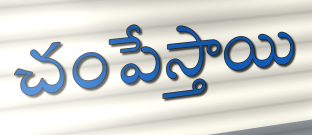
చంపేస్తాయి